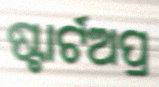
ଷ୍ଟାର୍ଟଅପ୍ର